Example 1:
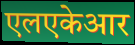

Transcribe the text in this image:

एलएकेआर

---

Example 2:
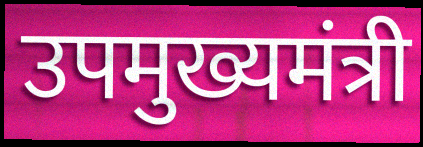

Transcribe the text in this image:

उपमुख्यमंत्री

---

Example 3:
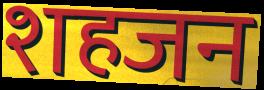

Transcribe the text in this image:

शहजन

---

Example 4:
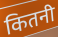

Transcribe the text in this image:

कितनी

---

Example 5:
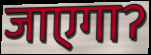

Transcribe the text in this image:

जाएगाॽ